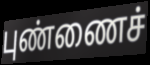
புண்ணைச்